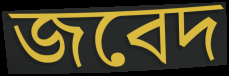
জবেদ